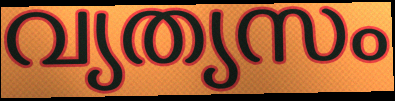
വ്യത്യസം